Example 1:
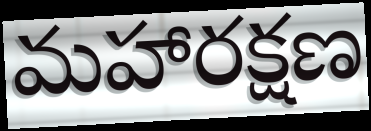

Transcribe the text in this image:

మహారక్షణ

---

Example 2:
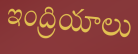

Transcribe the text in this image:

ఇంద్రియాలు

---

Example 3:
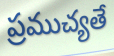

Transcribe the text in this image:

ప్రముచ్యతే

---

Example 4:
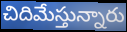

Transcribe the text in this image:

చిదిమేస్తున్నారు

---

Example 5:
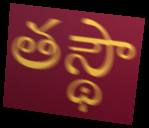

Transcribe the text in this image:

తస్థౌ